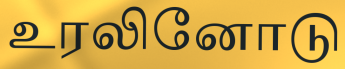
உரலினோடு